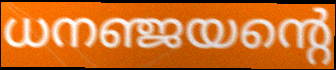
ധനഞ്ജയന്റെ